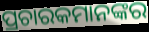
ପ୍ରଚାରକମାନଙ୍କର